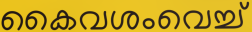
കൈവശംവെച്ച്